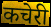
कचेरी